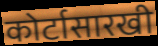
कोर्टासारखी